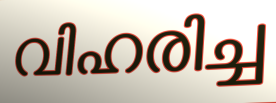
വിഹരിച്ച